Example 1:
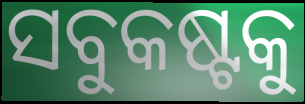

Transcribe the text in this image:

ସବୁକଷ୍ଟକୁ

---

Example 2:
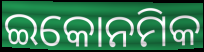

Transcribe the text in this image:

ଇକୋନମିକ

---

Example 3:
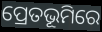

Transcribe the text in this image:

ପ୍ରେତଭୂମିରେ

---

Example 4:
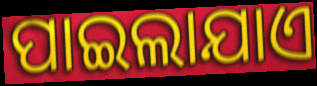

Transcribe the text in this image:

ପାଇଲାଯାଏ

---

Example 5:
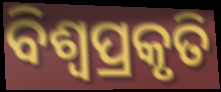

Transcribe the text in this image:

ବିଶ୍ଵପ୍ରକୃତି